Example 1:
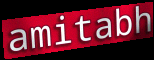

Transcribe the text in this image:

amitabh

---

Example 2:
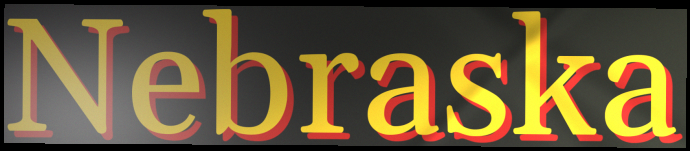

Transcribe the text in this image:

Nebraska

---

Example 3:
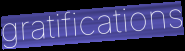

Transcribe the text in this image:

gratifications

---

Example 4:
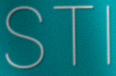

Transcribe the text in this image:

STI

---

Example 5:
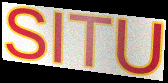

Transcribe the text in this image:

SITU